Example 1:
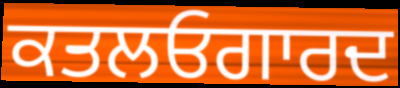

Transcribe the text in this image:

ਕਤਲਓਗਾਰਦ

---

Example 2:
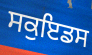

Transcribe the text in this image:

ਸਕੁਇਡਸ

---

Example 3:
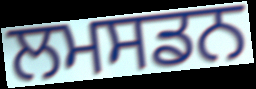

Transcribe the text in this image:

ਲਮਸਡਨ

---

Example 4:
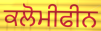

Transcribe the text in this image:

ਕਲੋਮੀਫੀਨ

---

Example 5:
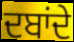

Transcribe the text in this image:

ਦਬਾਂਦੇ